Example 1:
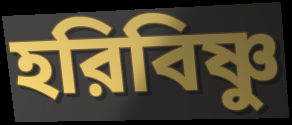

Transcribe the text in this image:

হরিবিষ্ণু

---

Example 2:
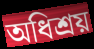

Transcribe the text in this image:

অধিশ্রয়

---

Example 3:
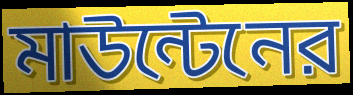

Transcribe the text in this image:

মাউন্টেনের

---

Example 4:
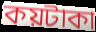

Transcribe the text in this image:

কয়টাকা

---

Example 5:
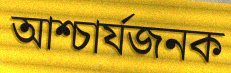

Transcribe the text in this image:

আশ্চার্যজনক